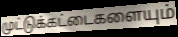
முட்டுக்கட்டைகளையும்